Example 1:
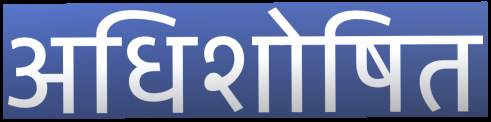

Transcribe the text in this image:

अधिशोषित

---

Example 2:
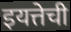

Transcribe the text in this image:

इयत्तेची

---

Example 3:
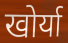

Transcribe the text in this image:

खोर्या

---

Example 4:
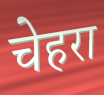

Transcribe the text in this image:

चेहरा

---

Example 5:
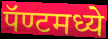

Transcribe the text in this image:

पॅण्टमध्ये